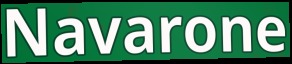
Navarone